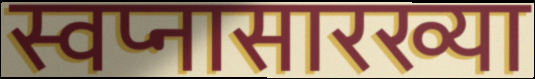
स्वप्नासारख्या